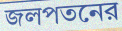
জলপতনের